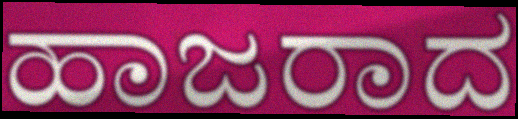
ಹಾಜರಾದ